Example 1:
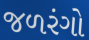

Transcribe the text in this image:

જળરંગો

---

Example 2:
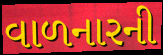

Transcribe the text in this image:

વાળનારની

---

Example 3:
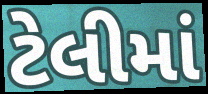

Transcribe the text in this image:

ટેલીમાં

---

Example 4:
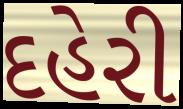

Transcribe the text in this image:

દહેરી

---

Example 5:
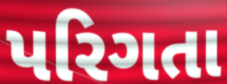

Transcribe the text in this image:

પરિગતા